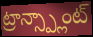
ట్రాన్స్ప్లాంట్